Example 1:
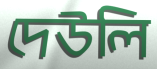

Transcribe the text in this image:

দেউলি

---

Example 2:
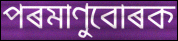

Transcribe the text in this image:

পৰমাণুবোৰক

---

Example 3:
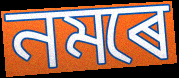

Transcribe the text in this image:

নমৰে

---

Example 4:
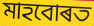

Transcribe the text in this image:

মাহবোৰত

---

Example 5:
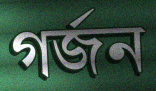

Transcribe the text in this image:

গৰ্জন